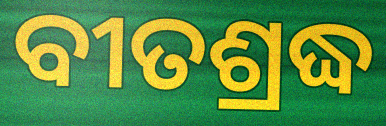
ବୀତଶ୍ରଦ୍ଧ